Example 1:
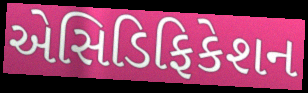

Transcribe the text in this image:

એસિડિફિકેશન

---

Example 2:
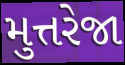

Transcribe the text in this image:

મુત્તરેજા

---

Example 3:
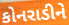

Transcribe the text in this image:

કોનરાડીને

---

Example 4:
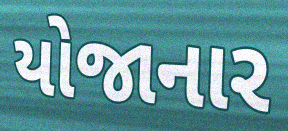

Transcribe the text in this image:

યોજાનાર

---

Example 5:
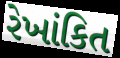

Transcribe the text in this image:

રેખાંકિત